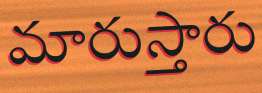
మారుస్తారు